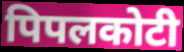
पिपलकोटी